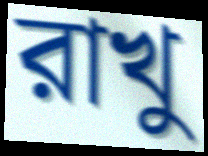
রাখু